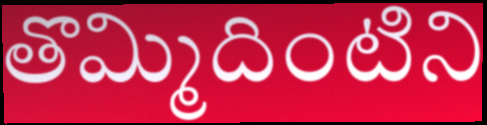
తొమ్మిదింటిని